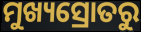
ମୁଖ୍ୟସ୍ରୋତରୁ